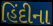
હિંદીના